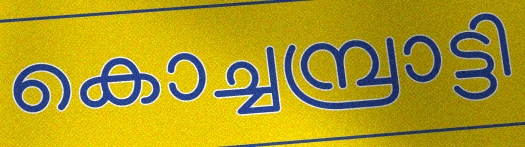
കൊച്ചമ്പ്രാട്ടി